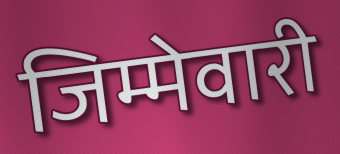
जिम्मेवारी